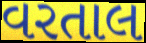
વરતાલ